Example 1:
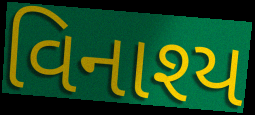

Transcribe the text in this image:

વિનાશ્ય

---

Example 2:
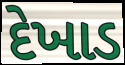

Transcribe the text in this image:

દેખાડ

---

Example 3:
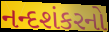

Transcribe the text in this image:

નન્દશંકરનો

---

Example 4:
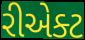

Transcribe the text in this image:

રીએક્ટ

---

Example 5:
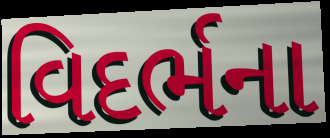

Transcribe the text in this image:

વિદર્ભના